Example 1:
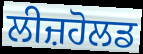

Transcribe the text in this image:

ਲੀਜ਼ਹੋਲਡ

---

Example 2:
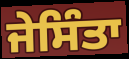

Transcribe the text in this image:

ਜੇਸਿੰਤਾ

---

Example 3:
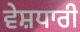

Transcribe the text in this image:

ਵੇਸ਼ਧਾਰੀ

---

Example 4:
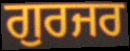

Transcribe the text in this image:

ਗੁਰਜਰ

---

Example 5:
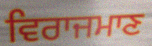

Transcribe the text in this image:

ਵਿਰਾਜਮਾਣ